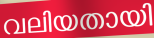
വലിയതായി